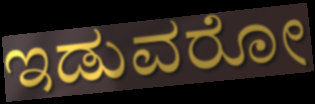
ಇಡುವರೋ